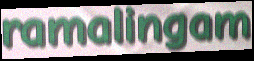
ramalingam